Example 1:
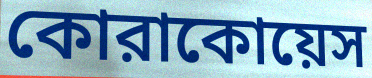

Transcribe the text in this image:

কোরাকোয়েস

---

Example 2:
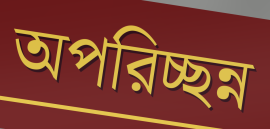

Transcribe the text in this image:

অপরিচ্ছন্ন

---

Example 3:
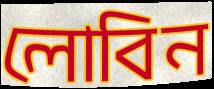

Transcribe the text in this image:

লোবিন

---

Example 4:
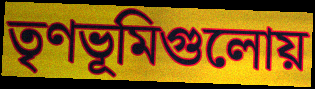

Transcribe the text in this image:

তৃণভূমিগুলোয়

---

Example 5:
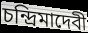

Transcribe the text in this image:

চন্দ্রিমাদেবী